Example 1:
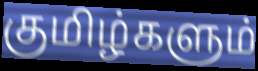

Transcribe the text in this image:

குமிழ்களும்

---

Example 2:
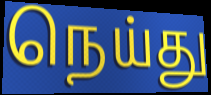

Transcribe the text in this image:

நெய்து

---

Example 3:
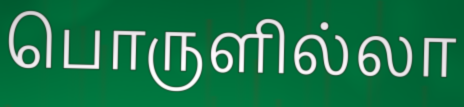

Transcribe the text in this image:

பொருளில்லா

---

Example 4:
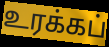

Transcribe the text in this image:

உரக்கப்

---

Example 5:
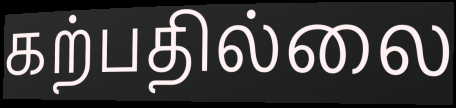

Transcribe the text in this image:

கற்பதில்லை